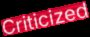
Criticized